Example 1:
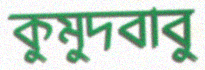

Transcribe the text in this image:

কুমুদবাবু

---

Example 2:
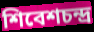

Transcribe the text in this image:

শিবেশচন্দ্র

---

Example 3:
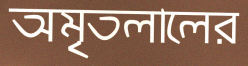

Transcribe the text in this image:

অমৃতলালের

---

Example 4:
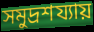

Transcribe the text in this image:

সমুদ্রশয্যায়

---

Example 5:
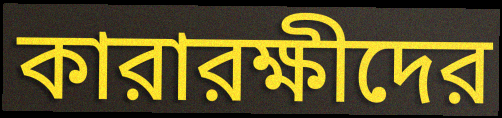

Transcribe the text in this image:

কারারক্ষীদের